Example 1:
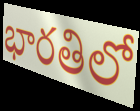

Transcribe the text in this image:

భారతిలో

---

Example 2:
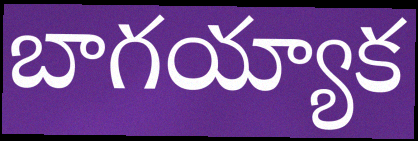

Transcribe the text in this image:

బాగయ్యాక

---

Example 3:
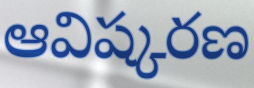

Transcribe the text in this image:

ఆవిష్కరణ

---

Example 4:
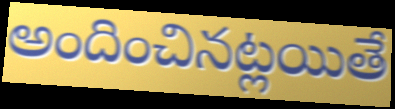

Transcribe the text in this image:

అందించినట్లయితే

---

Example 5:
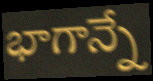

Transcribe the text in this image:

భాగాన్నే